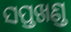
ସପ୍ତଖଣ୍ଡ